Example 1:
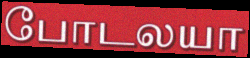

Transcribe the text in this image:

போடலயா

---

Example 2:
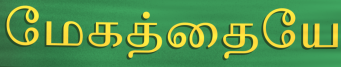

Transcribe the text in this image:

மேகத்தையே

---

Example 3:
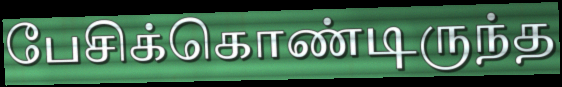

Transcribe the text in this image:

பேசிக்கொண்டிருந்த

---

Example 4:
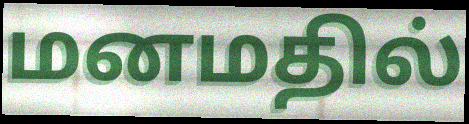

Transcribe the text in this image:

மனமதில்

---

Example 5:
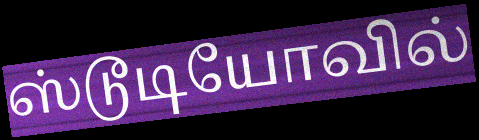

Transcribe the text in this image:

ஸ்டூடியோவில்